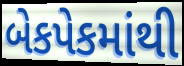
બેકપેકમાંથી